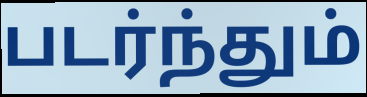
படர்ந்தும்